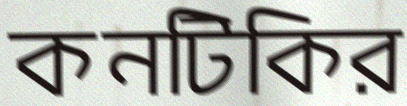
কনটিকির